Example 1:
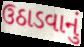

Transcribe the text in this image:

ઉઠાડવાનું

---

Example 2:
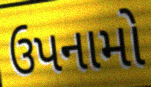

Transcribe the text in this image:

ઉપનામો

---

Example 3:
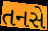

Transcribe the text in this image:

તનસે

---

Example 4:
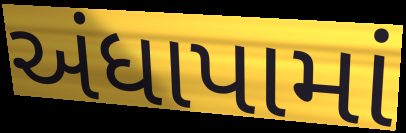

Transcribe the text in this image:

અંધાપામાં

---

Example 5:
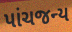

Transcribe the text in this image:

પાંચજન્ય